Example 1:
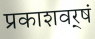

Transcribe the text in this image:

प्रकाशवर्षं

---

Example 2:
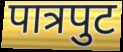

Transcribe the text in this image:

पात्रपुट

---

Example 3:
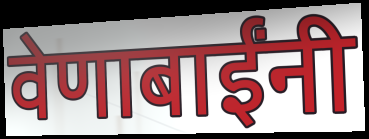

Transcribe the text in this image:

वेणाबाईंनी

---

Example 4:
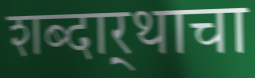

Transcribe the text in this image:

शब्दार्थाचा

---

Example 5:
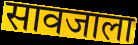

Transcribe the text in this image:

सावजाला